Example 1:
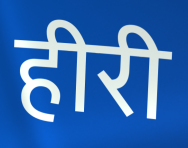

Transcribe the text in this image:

हीरी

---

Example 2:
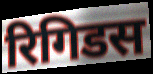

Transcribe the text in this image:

रिगिडस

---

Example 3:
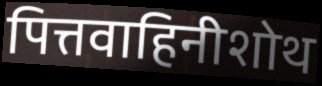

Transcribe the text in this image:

पित्तवाहिनीशोथ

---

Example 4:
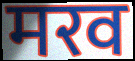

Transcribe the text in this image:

मरव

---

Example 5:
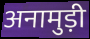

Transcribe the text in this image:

अनामुड़ी